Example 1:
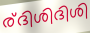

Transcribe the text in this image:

ര്ദിശിദിശി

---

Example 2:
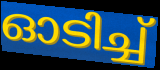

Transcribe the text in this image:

ഓടിച്ച്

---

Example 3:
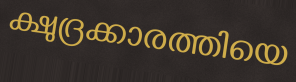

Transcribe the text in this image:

ക്ഷുദ്രക്കാരത്തിയെ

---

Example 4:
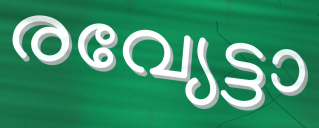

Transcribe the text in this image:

രവ്യേട്ടാ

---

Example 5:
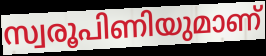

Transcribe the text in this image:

സ്വരൂപിണിയുമാണ്